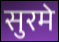
सुरमे